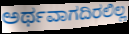
ಅರ್ಥವಾಗದಿರಲಿಲ್ಲ